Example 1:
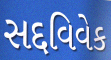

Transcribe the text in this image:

સદ્દવિવેક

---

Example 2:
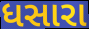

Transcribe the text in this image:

ધસારા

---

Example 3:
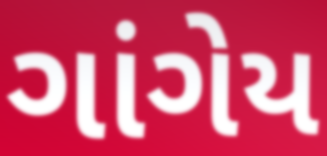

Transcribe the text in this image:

ગાંગેય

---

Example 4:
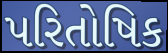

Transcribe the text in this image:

પરિતોષિક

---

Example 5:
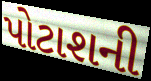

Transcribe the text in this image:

પોટાશની